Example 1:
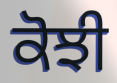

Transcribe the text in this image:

ਕੋਝੀ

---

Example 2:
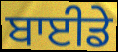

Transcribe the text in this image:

ਬਾਈਡੇ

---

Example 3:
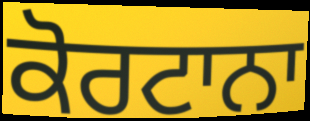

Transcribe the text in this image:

ਕੋਰਟਾਨਾ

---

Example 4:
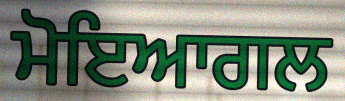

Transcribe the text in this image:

ਮੋਇਆਗਲ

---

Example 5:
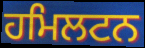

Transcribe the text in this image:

ਹਮਿਲਟਨ